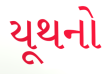
યૂથનો